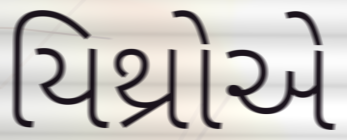
યિથ્રોએ